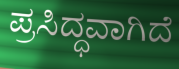
ಪ್ರಸಿದ್ಧವಾಗಿದೆ